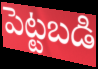
పెట్టబడి